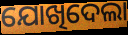
ଯୋଖିଦେଲା